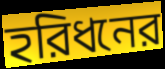
হরিধনের